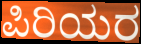
ಪಿರಿಯರ